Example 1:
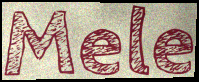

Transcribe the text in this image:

Mele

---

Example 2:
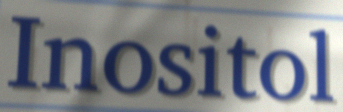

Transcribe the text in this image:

Inositol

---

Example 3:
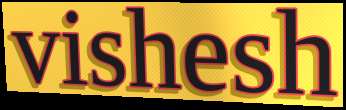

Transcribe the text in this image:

vishesh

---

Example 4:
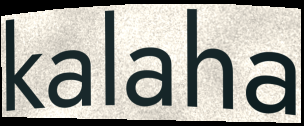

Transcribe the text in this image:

kalaha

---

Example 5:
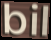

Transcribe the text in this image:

bil